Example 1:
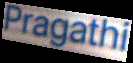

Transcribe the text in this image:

Pragathi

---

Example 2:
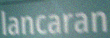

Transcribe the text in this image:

lancaran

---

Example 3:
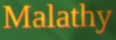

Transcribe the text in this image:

Malathy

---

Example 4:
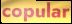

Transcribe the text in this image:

copular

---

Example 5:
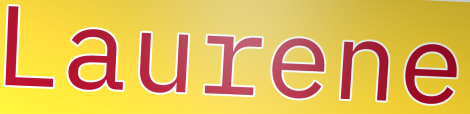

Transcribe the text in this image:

Laurene